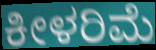
ಕೀಳರಿಮೆ